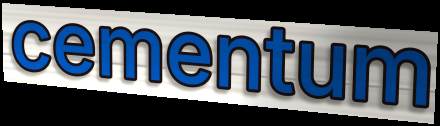
cementum